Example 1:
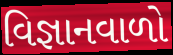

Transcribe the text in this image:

વિજ્ઞાનવાળો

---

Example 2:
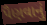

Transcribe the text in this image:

પૈણવાનું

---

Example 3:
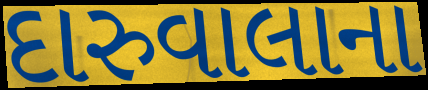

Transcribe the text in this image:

દારુવાલાના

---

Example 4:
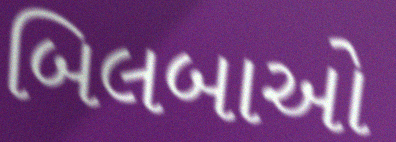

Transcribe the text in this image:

બિલબાઓ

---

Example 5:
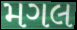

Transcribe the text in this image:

મગલ